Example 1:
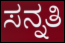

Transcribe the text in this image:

ಸನ್ನತಿ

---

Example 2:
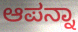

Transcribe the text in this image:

ಆಪನ್ನಾ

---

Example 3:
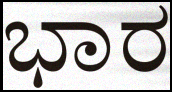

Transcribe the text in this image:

ಭಾರ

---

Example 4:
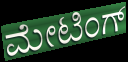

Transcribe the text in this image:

ಮೇಟಿಂಗ್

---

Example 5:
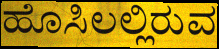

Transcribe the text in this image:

ಹೊಸಿಲಲ್ಲಿರುವ